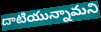
దాటియున్నామని